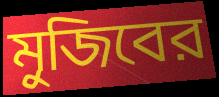
মুজিবের